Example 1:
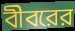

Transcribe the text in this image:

বীবরের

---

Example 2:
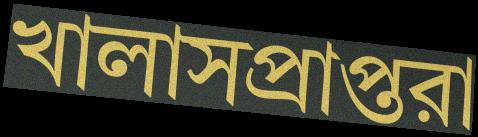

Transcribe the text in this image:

খালাসপ্রাপ্তরা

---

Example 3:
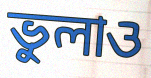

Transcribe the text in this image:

ভুলাও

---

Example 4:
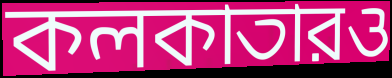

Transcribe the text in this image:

কলকাতারও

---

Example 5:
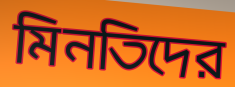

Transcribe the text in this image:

মিনতিদের